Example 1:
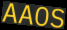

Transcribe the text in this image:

AAOS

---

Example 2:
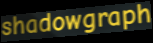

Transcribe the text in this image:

shadowgraph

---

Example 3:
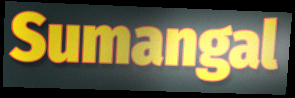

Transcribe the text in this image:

Sumangal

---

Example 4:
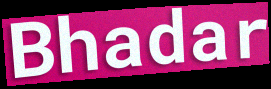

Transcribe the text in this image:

Bhadar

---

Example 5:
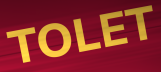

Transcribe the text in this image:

TOLET